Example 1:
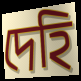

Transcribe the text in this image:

দেহি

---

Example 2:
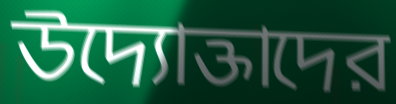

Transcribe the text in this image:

উদ্যোক্তাদের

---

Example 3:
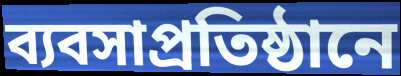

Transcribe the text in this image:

ব্যবসাপ্রতিষ্ঠানে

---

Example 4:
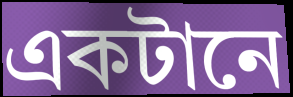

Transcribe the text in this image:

একটানে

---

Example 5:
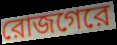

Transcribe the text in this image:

রোজগেরে